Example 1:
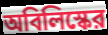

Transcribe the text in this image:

অবিলিস্কের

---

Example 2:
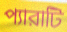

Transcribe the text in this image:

প্যারাটি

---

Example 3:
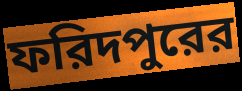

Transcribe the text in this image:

ফরিদপুরের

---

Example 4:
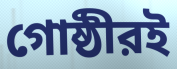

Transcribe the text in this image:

গোষ্ঠীরই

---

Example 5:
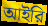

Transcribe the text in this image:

আইরি